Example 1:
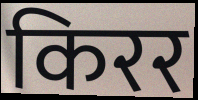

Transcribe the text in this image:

किरर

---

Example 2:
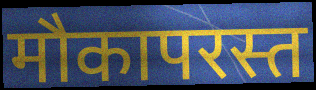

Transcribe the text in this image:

मौकापरस्त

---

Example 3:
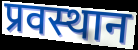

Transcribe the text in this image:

प्रवस्थान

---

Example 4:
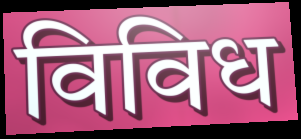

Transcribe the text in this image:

विविध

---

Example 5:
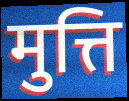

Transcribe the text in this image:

मुत्ति